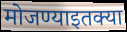
मोजण्याइतक्या